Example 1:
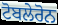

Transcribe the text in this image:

ਟੋਬਲੇਰੋਨ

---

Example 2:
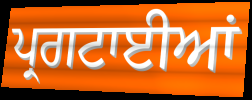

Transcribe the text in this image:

ਪ੍ਰਗਟਾਈਆਂ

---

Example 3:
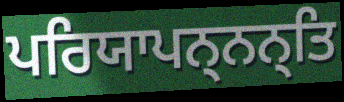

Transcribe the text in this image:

ਪਰਿਯਾਪਨ੍ਨਨ੍ਤਿ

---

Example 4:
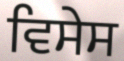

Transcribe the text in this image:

ਵਿਸੇਸ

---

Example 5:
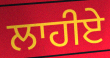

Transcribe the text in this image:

ਲਾਹੀਏ